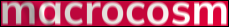
macrocosm